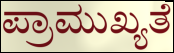
ಪ್ರಾಮುಖ್ಯತೆ